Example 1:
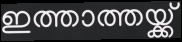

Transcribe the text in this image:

ഇത്താത്തയ്ക്ക്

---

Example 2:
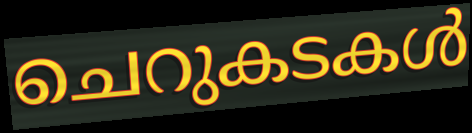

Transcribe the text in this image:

ചെറുകടകൾ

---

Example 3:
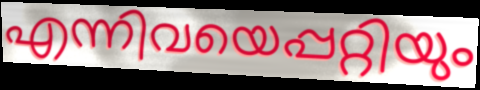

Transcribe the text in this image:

എന്നിവയെപ്പറ്റിയും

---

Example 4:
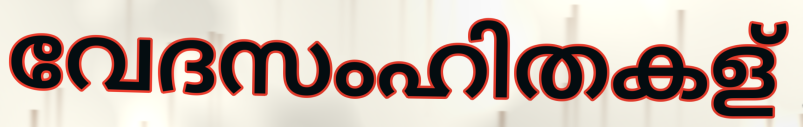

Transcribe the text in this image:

വേദസംഹിതകള്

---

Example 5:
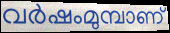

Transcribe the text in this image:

വർഷംമുമ്പാണ്